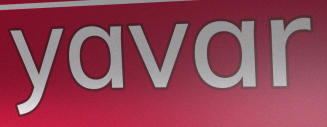
yavar